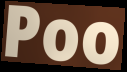
Poo